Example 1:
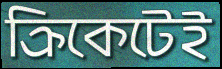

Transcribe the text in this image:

ক্রিকেটেই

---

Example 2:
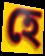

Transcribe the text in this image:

হে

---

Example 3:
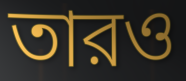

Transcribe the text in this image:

তারও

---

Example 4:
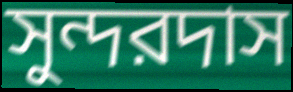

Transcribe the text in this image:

সুন্দরদাস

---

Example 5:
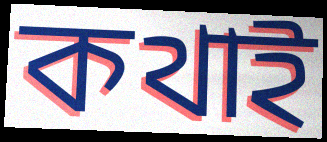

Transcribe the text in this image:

কথাই